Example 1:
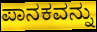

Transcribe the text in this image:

ಪಾನಕವನ್ನು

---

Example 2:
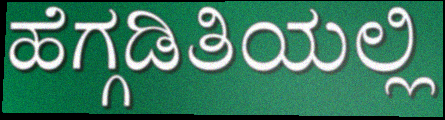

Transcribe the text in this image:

ಹೆಗ್ಗಡಿತಿಯಲ್ಲಿ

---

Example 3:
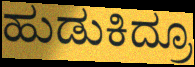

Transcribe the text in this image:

ಹುಡುಕಿದ್ರೂ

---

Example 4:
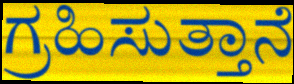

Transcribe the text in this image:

ಗ್ರಹಿಸುತ್ತಾನೆ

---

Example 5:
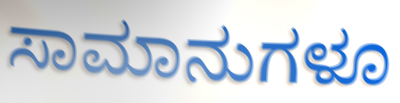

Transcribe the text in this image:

ಸಾಮಾನುಗಳೂ